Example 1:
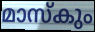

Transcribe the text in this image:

മാസ്കും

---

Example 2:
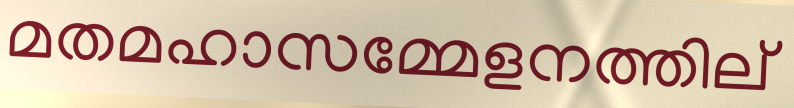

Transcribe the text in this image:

മതമഹാസമ്മേളനത്തില്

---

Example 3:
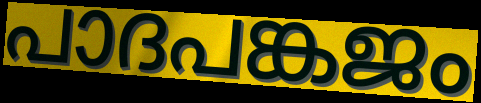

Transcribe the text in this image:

പാദപങ്കജം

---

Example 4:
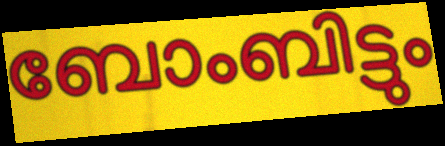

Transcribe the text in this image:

ബോംബിട്ടും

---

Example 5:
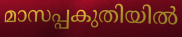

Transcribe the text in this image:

മാസപ്പകുതിയിൽ